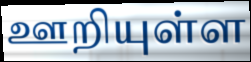
ஊறியுள்ள